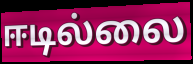
ஈடில்லை